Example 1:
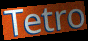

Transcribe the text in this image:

Tetro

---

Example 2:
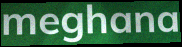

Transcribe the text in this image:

meghana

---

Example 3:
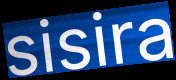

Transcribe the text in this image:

sisira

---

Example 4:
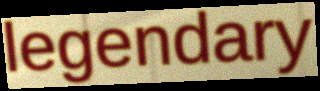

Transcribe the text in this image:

legendary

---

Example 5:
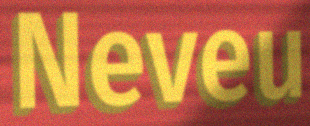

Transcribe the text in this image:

Neveu